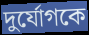
দুর্যোগকে